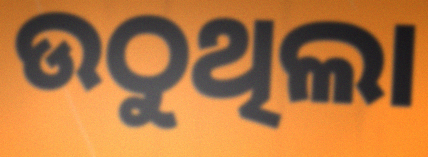
ଉଠୁଥିଲା